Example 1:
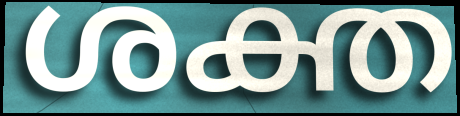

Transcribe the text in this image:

ശക്ത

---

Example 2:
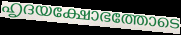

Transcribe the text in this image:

ഹൃദയക്ഷോഭത്തോടെ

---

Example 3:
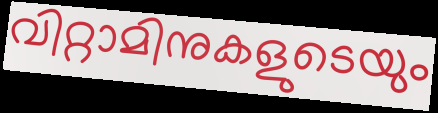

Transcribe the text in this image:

വിറ്റാമിനുകളുടെയും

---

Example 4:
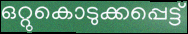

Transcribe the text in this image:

ഒറ്റുകൊടുക്കപ്പെട്ട്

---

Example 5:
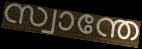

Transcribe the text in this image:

സ്വാന്തേ